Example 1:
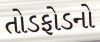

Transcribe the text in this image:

તોડફોડનો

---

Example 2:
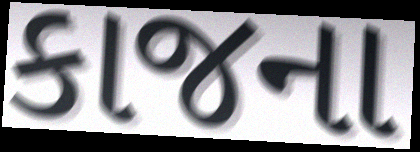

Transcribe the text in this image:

કાજના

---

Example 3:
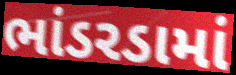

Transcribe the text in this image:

ભાંડરડામાં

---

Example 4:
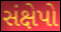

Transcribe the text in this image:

સંક્ષેપો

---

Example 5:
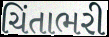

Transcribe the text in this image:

ચિંતાભરી